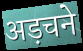
अड़चने